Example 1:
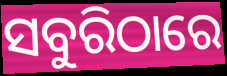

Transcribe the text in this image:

ସବୁରିଠାରେ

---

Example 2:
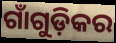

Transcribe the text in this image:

ଗାଁଗୁଡ଼ିକର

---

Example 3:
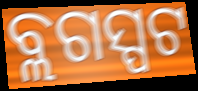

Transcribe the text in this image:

ବ୍ଲଗସ୍ପଟ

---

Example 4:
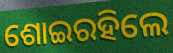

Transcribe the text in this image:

ଶୋଇରହିଲେ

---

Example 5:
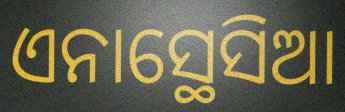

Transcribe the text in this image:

ଏନାସ୍ଥେସିଆ